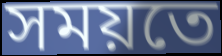
সময়তে